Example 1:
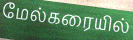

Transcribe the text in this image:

மேல்கரையில்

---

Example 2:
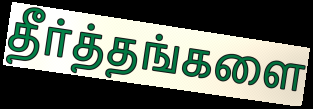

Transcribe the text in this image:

தீர்த்தங்களை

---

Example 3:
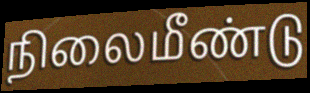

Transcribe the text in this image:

நிலைமீண்டு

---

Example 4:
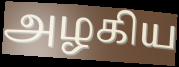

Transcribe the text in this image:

அழகிய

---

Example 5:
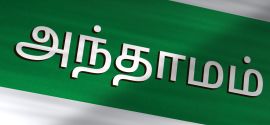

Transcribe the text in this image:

அந்தாமம்